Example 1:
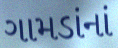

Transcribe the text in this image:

ગામડાંનાં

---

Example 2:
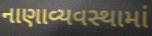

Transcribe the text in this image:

નાણાવ્યવસ્થામાં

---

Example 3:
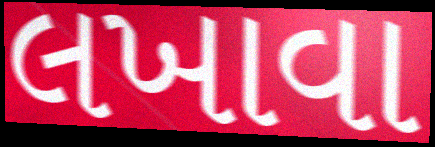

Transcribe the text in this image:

લખાવા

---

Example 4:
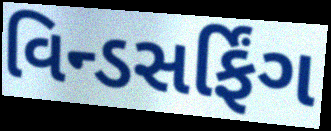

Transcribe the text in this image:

વિન્ડસર્ફિંગ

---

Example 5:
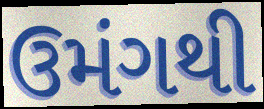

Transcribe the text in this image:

ઉમંગથી